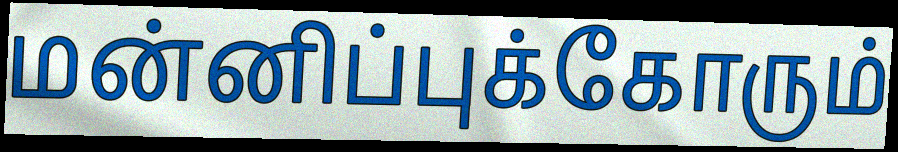
மன்னிப்புக்கோரும்